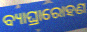
ବ୍ୟାଘ୍ରାରୋହଣ